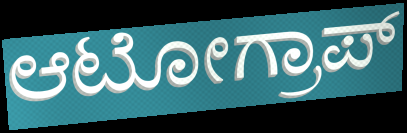
ಆಟೋಗ್ರಾಪ್